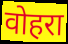
वोहरा